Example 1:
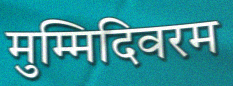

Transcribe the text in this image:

मुम्मिदिवरम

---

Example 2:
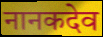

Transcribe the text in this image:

नानकदेव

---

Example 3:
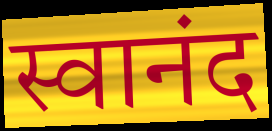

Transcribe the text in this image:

स्वानंद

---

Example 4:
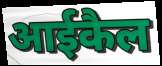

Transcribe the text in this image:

आईकैल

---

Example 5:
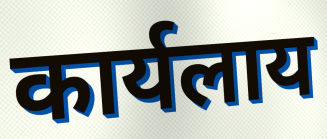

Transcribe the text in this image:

कार्यलाय